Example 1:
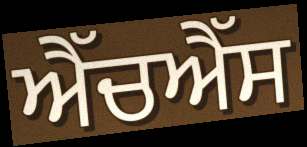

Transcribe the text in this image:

ਐੱਚਐੱਸ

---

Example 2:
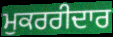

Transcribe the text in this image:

ਮੁਕਰਰੀਦਾਰ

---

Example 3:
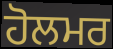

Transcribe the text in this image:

ਹੋਲਮਰ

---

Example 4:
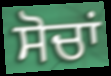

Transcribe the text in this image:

ਸੋਚਾਂ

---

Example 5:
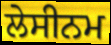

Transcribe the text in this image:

ਲੇਸੀਨਮ